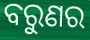
ବରୁଣର